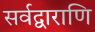
सर्वद्वाराणि